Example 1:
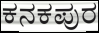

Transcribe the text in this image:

ಕನಕಪುರ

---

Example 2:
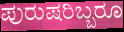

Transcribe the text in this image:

ಪುರುಷರಿಬ್ಬರೂ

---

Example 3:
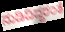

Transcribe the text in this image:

ನುಡಿದಿದ್ದರಂತೆ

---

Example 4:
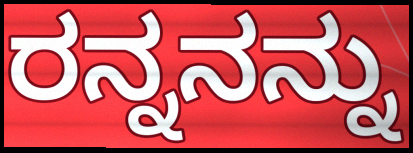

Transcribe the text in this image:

ರನ್ನನನ್ನು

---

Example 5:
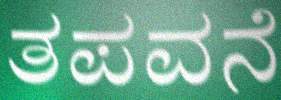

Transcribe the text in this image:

ತಪವನೆ